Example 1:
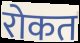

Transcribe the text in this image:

रोकत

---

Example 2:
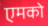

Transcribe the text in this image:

एमको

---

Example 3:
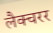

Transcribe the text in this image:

लैक्चरर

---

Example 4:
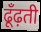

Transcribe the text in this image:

ढूँढ़ती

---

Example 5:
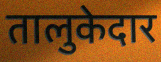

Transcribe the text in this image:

तालुकेदार